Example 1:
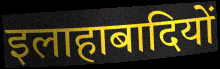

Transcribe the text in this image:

इलाहाबादियों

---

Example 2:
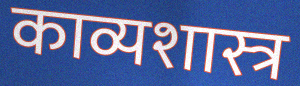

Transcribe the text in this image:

काव्यशास्त्र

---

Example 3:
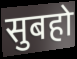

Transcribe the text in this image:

सुबहो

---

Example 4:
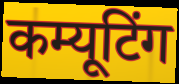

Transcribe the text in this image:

कम्यूटिंग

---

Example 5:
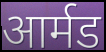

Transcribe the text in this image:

आर्मड